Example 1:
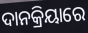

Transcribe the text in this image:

ଦାନକ୍ରିୟାରେ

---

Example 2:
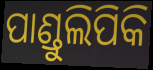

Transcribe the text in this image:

ପାଣ୍ଡୁଲିପିକି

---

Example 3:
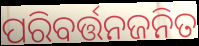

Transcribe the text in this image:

ପରିବର୍ତ୍ତନଜନିତ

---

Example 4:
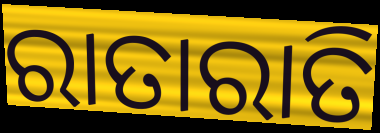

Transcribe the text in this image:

ରାତାରାତି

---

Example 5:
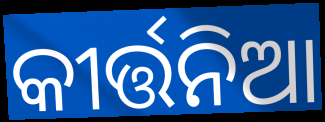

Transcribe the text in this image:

କୀର୍ତ୍ତନିଆ